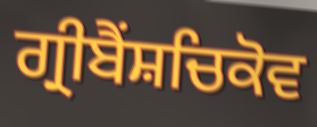
ਗ੍ਰੀਬੈਂਸ਼ਚਿਕੋਵ